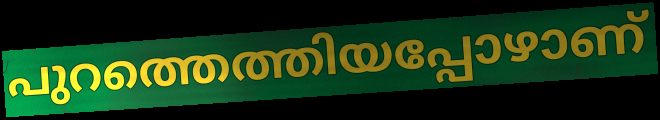
പുറത്തെത്തിയപ്പോഴാണ്